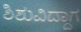
ಶಿಶುವಿದ್ದಾಗ